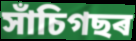
সাঁচিগছৰ